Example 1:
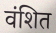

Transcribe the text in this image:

वंशित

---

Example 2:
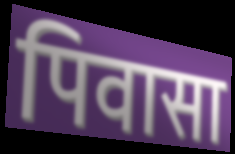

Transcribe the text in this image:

पिवासा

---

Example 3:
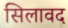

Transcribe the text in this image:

सिलावद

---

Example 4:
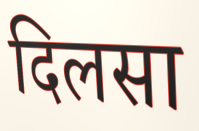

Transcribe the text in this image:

दिलसा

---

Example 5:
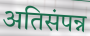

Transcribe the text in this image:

अतिसंपन्न